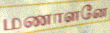
மணாளனே